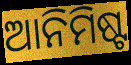
ଆନିମିଷ୍ଟ